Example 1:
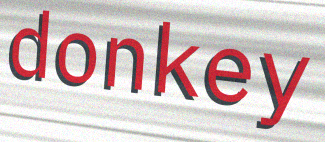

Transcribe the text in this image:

donkey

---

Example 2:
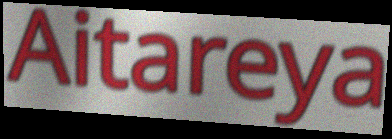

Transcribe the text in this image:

Aitareya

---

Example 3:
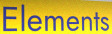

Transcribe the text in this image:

Elements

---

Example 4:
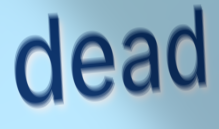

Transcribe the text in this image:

dead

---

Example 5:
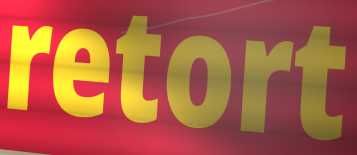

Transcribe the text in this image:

retort